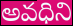
అవధిని